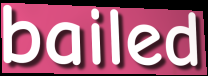
bailed